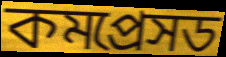
কমপ্রেসড